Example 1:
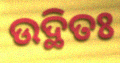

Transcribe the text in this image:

ଉଦ୍ଥିତଃ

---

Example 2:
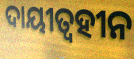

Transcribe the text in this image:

ଦାୟୀତ୍ୱହୀନ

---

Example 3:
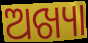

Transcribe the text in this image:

ଅଖ୍ୟା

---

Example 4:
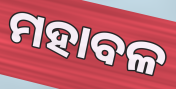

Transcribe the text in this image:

ମହାବଳ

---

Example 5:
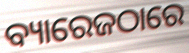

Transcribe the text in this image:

ବ୍ୟାରେଜଠାରେ